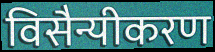
विसैन्यीकरण